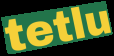
tetlu